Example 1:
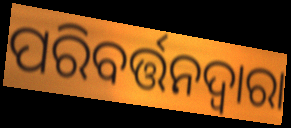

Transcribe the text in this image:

ପରିବର୍ତ୍ତନଦ୍ୱାରା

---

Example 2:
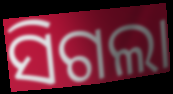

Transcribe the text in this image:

ସିଗଲା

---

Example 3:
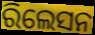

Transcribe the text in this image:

ରିଲେସନ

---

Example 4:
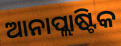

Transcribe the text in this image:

ଆନାପ୍ଲାଷ୍ଟିକ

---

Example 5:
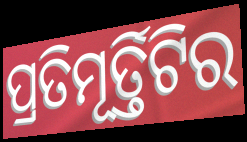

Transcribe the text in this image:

ପ୍ରତିମୂର୍ତ୍ତିଟିର